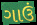
ગાઉં